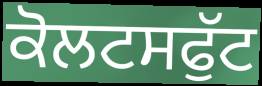
ਕੋਲਟਸਫੁੱਟ